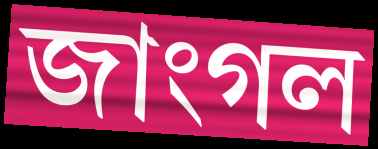
জাংগল